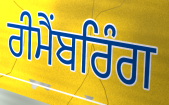
ਰੀਮੈਂਬਰਿੰਗ